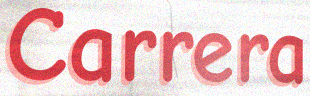
Carrera